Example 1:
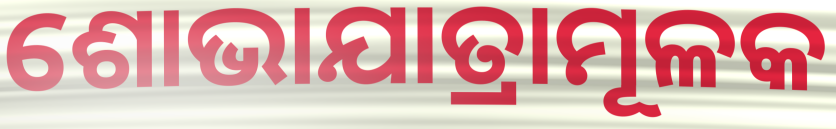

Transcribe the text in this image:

ଶୋଭାଯାତ୍ରାମୂଳକ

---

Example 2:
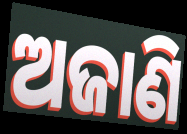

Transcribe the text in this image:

ଅଜାଣି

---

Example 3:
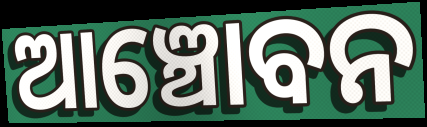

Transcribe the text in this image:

ଆଞ୍ଚୋବନ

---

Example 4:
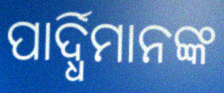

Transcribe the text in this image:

ପାର୍ଦ୍ଧିମାନଙ୍କ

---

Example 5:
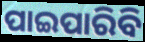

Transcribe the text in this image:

ପାଇପାରିବି